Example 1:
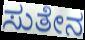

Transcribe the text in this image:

ಸುತೇನ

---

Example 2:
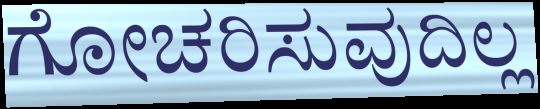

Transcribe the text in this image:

ಗೋಚರಿಸುವುದಿಲ್ಲ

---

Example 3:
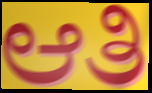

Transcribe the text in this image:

ಆತಿ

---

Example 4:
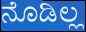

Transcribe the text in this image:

ನೊಡಿಲ್ಲ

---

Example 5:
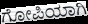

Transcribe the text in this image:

ಗೋಪಿಯಾಗಿ